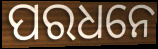
ପରଧନେ